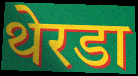
थेरडा